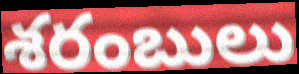
శరంబులు